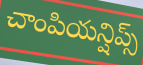
చాంపియన్షిప్స్